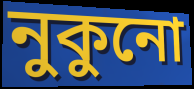
নুকুনো